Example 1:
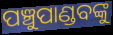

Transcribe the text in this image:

ପଞ୍ଚୁପାଣ୍ଡବଙ୍କୁ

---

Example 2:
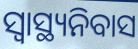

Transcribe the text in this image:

ସ୍ୱାସ୍ଥ୍ୟନିବାସ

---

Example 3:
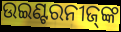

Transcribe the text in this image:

ଉଇଣ୍ଟରନୀଜ୍‌ଙ୍କ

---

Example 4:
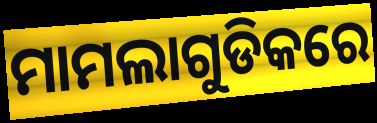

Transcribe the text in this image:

ମାମଲାଗୁଡିକରେ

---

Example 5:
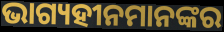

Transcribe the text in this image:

ଭାଗ୍ୟହୀନମାନଙ୍କର